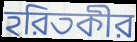
হরিতকীর